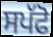
ਸਪੱਫੋ